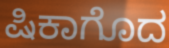
ಷಿಕಾಗೊದ